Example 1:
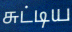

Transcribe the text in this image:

சுட்டிய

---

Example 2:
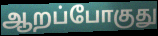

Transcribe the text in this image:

ஆறப்போகுது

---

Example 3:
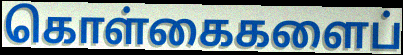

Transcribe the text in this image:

கொள்கைகளைப்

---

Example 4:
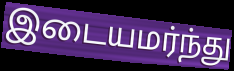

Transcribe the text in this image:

இடையமர்ந்து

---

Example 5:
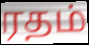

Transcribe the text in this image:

ரதம்